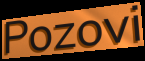
Pozovi